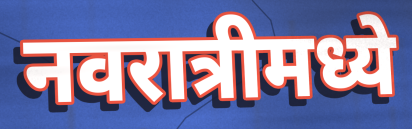
नवरात्रीमध्ये